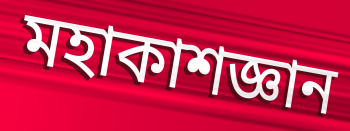
মহাকাশজ্ঞান